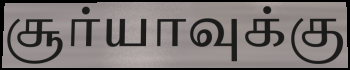
சூர்யாவுக்கு